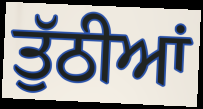
ਤੁੱਠੀਆਂ